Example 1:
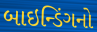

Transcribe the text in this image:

બાઇન્ડિંગનો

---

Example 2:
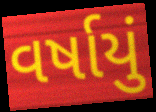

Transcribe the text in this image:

વર્ષાયું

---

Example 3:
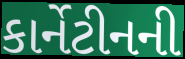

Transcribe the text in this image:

કાર્નેટીનની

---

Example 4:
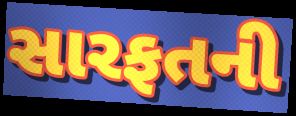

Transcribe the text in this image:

સારફતની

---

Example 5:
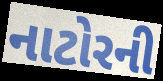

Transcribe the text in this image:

નાટોરની